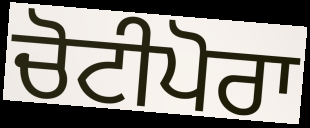
ਚੋਟੀਪੋਰਾ